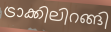
ട്രാക്കിലിറങ്ങി